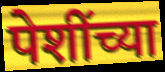
पेशींच्या